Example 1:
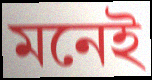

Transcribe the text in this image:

মনেই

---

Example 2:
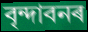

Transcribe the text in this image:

বৃন্দাবনৰ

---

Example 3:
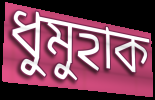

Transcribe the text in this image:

ধুমুহাক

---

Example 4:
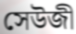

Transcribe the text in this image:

সেউজী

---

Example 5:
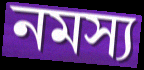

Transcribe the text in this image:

নমস্য